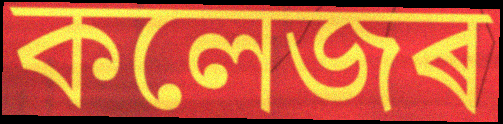
কলেজৰ